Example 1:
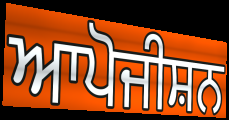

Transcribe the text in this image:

ਆਪੋਜੀਸ਼ਨ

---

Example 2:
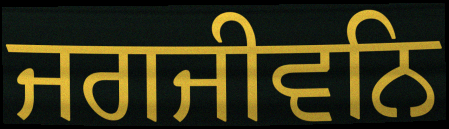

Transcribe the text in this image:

ਜਗਜੀਵਨਿ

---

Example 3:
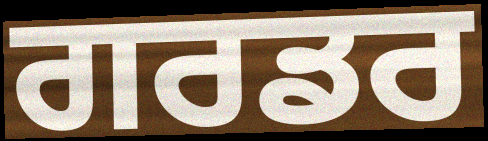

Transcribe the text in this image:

ਗਰਡਰ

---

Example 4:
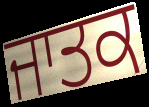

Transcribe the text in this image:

ਜਾਤਕ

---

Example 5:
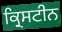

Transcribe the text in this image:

ਕ੍ਰਿਸਟੀਨ